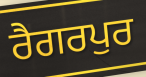
ਰੈਗਰਪੁਰ